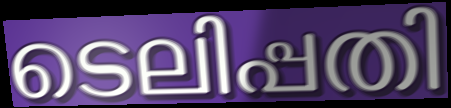
ടെലിപ്പതി